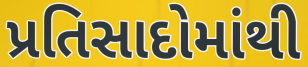
પ્રતિસાદોમાંથી